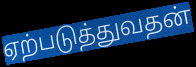
ஏற்படுத்துவதன்